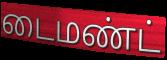
டைமண்ட்